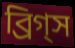
ব্রিগ্‌স